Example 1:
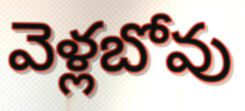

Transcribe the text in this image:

వెళ్లబోవు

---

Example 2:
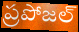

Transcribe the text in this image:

ప్రపోజల్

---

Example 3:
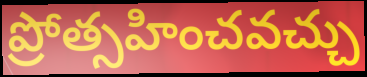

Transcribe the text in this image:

ప్రోత్సహించవచ్చు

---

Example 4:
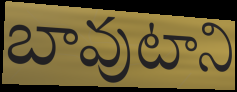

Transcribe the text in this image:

బావుటాని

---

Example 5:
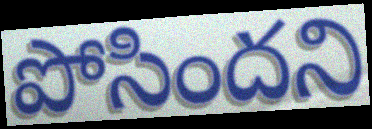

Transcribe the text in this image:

పోసిందని